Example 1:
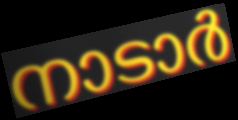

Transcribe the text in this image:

നാടാർ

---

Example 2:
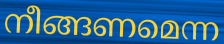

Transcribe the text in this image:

നീങ്ങണമെന്ന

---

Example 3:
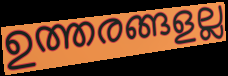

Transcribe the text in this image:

ഉത്തരങ്ങളല്ല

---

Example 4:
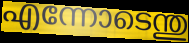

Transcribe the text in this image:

എന്നോടെന്തു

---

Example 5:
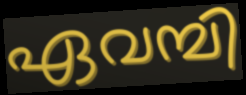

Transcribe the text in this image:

ഏവമ്പി